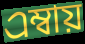
এম্বায়